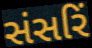
સંસરિં